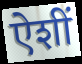
ऐशीं